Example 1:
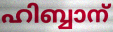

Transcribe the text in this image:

ഹിബ്ബാന്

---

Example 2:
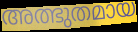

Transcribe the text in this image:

അത്ഭുതമായ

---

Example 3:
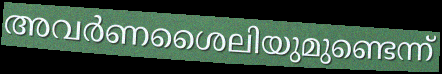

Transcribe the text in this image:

അവർണശൈലിയുമുണ്ടെന്ന്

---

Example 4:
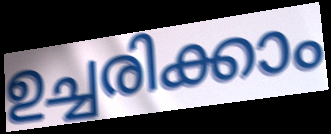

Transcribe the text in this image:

ഉച്ചരിക്കാം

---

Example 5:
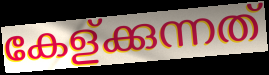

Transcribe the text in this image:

കേള്ക്കുന്നത്